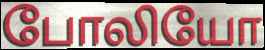
போலியோ